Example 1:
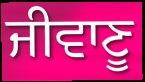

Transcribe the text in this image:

ਜੀਵਾਣੂ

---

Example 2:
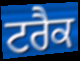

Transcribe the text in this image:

ਟਰੈਕ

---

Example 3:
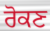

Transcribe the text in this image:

ਰੋਕਣ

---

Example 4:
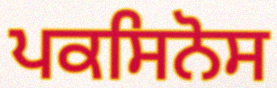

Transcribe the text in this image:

ਪਕਸਿਨੋਸ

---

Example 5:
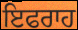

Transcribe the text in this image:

ਇਫਰਾਹ